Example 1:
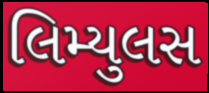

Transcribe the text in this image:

લિમ્યુલસ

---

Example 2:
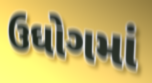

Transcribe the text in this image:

ઉઘોગમાં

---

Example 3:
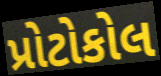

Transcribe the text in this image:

પ્રોટોકોલ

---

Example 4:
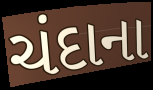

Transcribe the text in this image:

ચંદાના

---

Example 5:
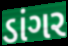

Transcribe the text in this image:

ડાંગર